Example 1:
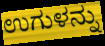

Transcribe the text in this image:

ಉಗುಳನ್ನು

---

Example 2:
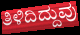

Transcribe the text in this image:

ತಿಳಿದಿದ್ದುವು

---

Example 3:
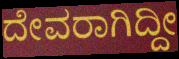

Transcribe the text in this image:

ದೇವರಾಗಿದ್ದೀ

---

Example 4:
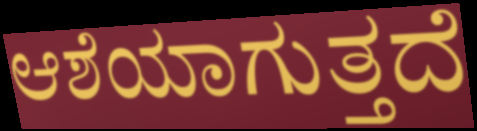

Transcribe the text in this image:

ಆಶೆಯಾಗುತ್ತದೆ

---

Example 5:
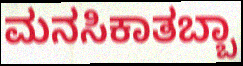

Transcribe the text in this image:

ಮನಸಿಕಾತಬ್ಬಾ